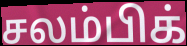
சலம்பிக்